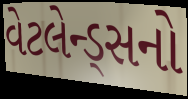
વેટલેન્ડ્સનો